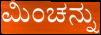
ಮಿಂಚನ್ನು